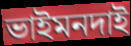
ভাইমনদাই